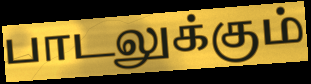
பாடலுக்கும்